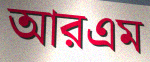
আরএম